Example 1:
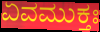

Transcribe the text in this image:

ಏವಮುಕ್ತಃ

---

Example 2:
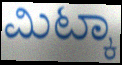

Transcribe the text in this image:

ಮಿಟ್ಕಾ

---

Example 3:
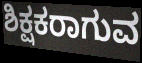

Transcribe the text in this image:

ಶಿಕ್ಷಕರಾಗುವ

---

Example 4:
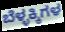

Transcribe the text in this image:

ಬೆಳ್ಳಕ್ಕಿಗಳ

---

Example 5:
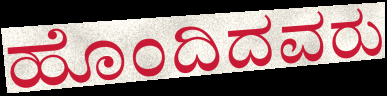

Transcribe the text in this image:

ಹೊಂದಿದವರು